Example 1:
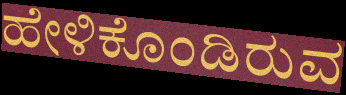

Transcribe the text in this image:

ಹೇಳಿಕೊಂಡಿರುವ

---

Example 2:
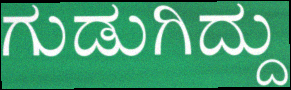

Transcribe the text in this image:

ಗುಡುಗಿದ್ದು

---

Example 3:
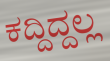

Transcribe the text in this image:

ಕದ್ದಿದ್ದಲ್ಲ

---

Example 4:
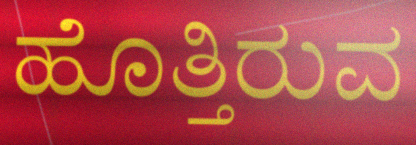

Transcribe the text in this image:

ಹೊತ್ತಿರುವ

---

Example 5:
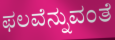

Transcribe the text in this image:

ಫಲವೆನ್ನುವಂತೆ